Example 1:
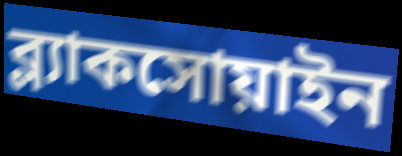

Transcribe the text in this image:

ব্ল্যাকসোয়াইন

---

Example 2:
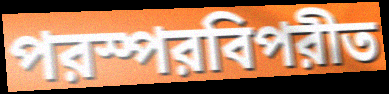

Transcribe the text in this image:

পরস্পরবিপরীত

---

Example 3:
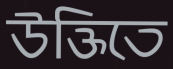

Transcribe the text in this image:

উক্তিতে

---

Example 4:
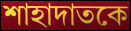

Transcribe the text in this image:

শাহাদাতকে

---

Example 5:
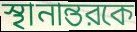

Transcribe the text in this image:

স্থানান্তরকে